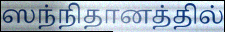
ஸந்நிதானத்தில்